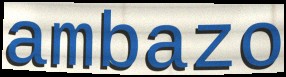
ambazo